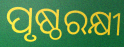
ପୃଷ୍ଠରକ୍ଷୀ